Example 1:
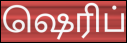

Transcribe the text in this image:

ஷெரிப்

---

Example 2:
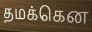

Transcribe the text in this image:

தமக்கென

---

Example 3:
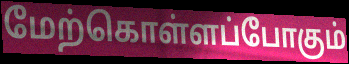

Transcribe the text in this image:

மேற்கொள்ளப்போகும்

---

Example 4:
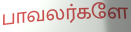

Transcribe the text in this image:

பாவலர்களே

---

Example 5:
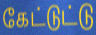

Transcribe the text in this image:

கேட்டுட்டு